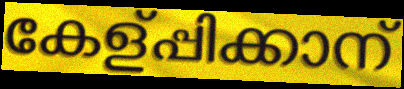
കേള്പ്പിക്കാന്